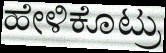
ಹೇಳಿಕೊಟ್ರು